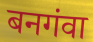
बनगंवा